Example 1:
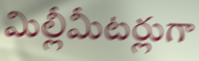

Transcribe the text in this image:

మిల్లీమీటర్లుగా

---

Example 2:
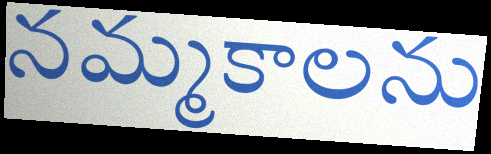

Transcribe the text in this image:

నమ్మకాలను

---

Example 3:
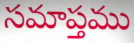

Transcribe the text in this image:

సమాప్తము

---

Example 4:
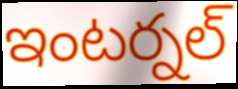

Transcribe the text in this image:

ఇంటర్నల్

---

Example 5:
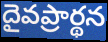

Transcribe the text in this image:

దైవప్రార్థన